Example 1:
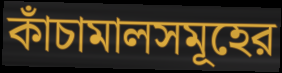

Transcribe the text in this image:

কাঁচামালসমূহের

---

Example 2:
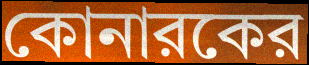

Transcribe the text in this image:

কোনারকের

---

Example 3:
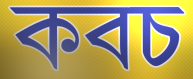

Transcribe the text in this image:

কবচ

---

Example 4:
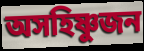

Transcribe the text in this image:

অসহিষ্ণুজন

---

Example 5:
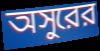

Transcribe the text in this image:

অসুরের